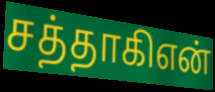
சத்தாகிஎன்